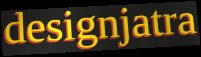
designjatra